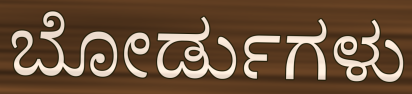
ಬೋರ್ಡುಗಳು